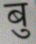
बु